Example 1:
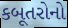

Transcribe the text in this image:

કબૂતરોનો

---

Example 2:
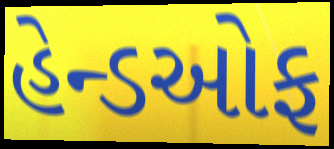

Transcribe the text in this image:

હેન્ડઓફ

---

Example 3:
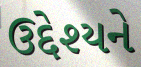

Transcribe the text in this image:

ઉદ્દેશ્યને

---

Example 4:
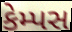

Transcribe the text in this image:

કેમ્પસ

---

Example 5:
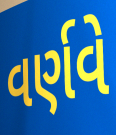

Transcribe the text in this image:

વર્ણવે